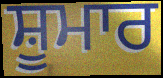
ਸ਼ੂਮਾਰ